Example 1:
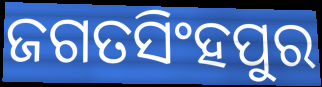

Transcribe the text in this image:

ଜଗତସିଂହପୁର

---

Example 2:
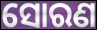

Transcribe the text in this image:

ସୋରଣ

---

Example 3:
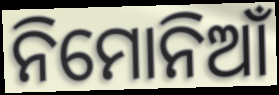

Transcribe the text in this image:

ନିମୋନିଆଁ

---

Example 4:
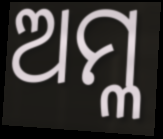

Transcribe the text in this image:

ଅମ୍ଳ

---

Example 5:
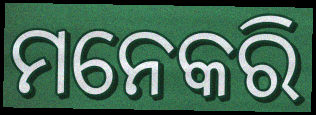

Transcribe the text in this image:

ମନେକରି